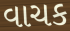
વાચક